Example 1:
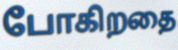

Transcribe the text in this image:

போகிறதை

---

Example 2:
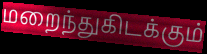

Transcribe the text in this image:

மறைந்துகிடக்கும்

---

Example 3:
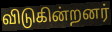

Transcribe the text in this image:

விடுகின்றனர்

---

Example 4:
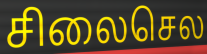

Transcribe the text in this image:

சிலைசெல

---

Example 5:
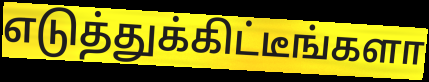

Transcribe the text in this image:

எடுத்துக்கிட்டீங்களா